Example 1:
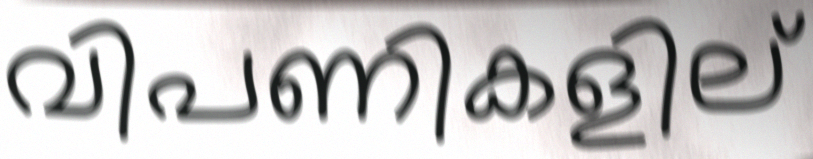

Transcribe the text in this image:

വിപണികളില്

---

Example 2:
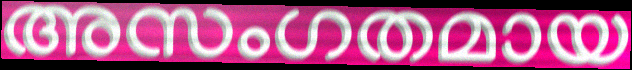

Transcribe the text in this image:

അസംഗതമായ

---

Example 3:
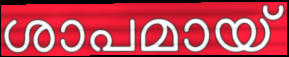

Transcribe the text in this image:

ശാപമായ്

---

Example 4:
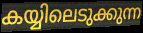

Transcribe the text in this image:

കയ്യിലെടുക്കുന്ന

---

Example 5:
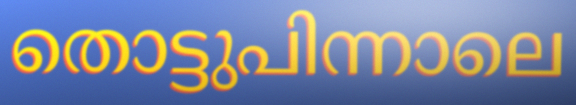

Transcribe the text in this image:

തൊട്ടുപിന്നാലെ